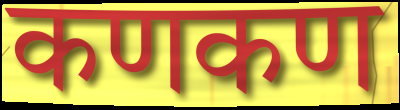
कणकण